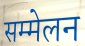
सम्मेलन